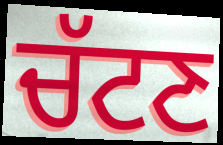
ਚੱਟਣ